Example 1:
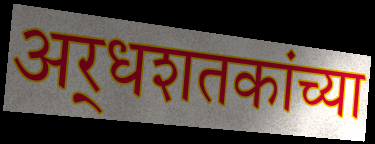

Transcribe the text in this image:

अर्धशतकांच्या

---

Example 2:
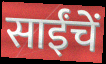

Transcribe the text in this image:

साईंचें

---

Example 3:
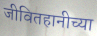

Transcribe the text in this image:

जीवितहानीच्या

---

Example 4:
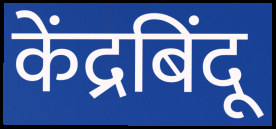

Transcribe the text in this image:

केंद्रबिंदू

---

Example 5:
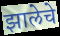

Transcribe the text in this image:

झालेचे